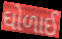
ઘોળાઈ